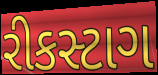
રીકસ્ટાગ